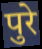
पुरे